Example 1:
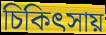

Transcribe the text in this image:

চিকিৎসায়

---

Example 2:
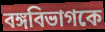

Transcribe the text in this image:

বঙ্গবিভাগকে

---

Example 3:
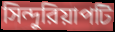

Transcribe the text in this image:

সিন্দুরিয়াপটি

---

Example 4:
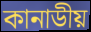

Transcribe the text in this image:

কানাডীয়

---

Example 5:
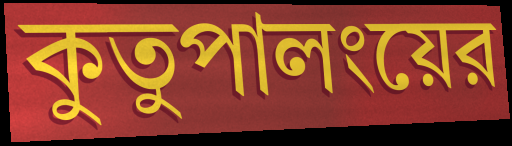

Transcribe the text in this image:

কুতুপালংয়ের